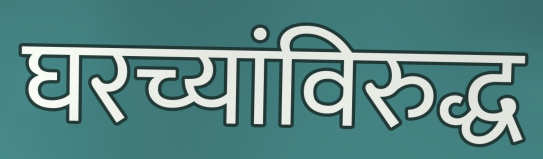
घरच्यांविरुद्ध